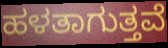
ಹಳತಾಗುತ್ತವೆ